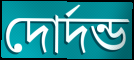
দোর্দন্ড